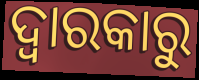
ଦ୍ଵାରକାରୁ